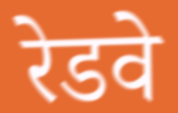
रेडवे